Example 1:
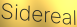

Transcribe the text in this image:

Sidereal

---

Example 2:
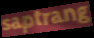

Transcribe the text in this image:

saptrang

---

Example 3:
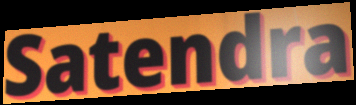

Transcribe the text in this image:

Satendra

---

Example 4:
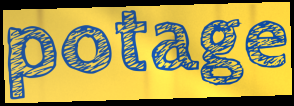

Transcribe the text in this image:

potage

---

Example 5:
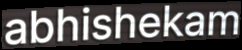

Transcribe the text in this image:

abhishekam